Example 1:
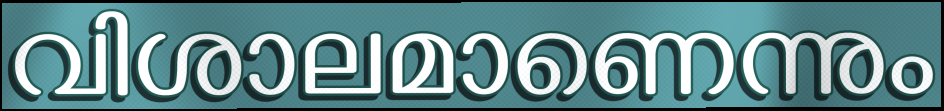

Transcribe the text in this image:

വിശാലമാണെന്നും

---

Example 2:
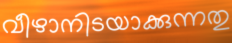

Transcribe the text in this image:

വീഴാനിടയാക്കുന്നതു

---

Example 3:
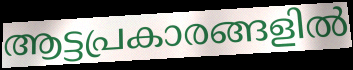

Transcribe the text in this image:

ആട്ടപ്രകാരങ്ങളിൽ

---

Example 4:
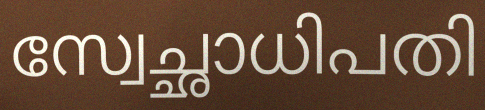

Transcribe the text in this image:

സ്വേച്ഛാധിപതി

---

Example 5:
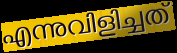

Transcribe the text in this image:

എന്നുവിളിച്ചത്